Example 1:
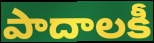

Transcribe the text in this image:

పాదాలకీ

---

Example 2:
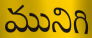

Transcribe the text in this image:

మునిగి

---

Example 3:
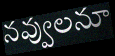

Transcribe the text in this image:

నవ్వులనూ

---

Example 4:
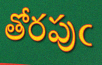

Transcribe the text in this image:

తోరపుఁ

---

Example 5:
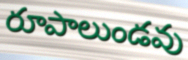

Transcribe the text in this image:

రూపాలుండవు